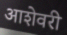
आशेवरी